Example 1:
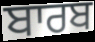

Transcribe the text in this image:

ਬਾਰਬ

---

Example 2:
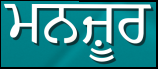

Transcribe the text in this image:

ਮਨਜ਼ੂਰ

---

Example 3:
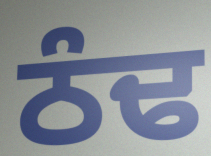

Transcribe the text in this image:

ਠੰਢ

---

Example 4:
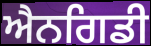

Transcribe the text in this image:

ਐਨਗਿਡੀ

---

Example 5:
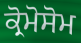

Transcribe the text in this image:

ਕ੍ਰੋਮੋਸੋਮ